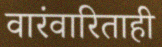
वारंवारिताही